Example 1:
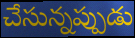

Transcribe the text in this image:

చేసున్నప్పుడు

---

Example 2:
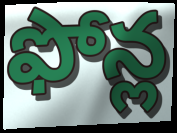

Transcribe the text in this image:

ఫోన్ల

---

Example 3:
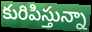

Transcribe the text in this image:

కురిపిస్తున్నా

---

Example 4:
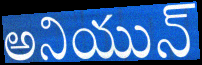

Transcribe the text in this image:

అనియున్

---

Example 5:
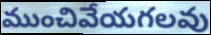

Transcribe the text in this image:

ముంచివేయగలవు